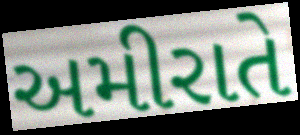
અમીરાતે